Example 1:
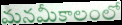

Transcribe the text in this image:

మనమీకాలంలో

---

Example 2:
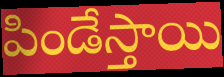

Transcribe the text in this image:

పిండేస్తాయి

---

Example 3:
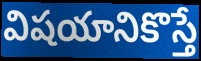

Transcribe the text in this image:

విషయానికొస్తే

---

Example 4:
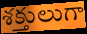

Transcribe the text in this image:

శక్తులుగా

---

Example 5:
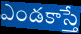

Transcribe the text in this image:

ఎండకాస్తే